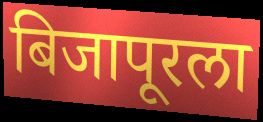
बिजापूरला